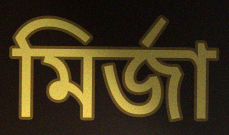
মিৰ্জা